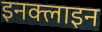
इनक्लाइन